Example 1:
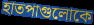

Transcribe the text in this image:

হাতপাগুলোকে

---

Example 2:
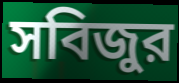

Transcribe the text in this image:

সবিজুর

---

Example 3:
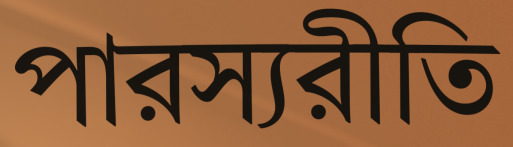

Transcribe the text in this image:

পারস্যরীতি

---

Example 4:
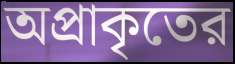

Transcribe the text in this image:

অপ্রাকৃতের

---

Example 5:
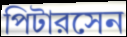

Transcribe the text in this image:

পিটারসেন